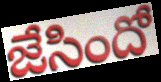
జేసిందో